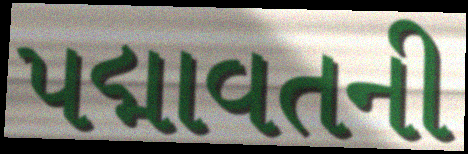
પદ્માવતની